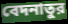
বেদনাতুর